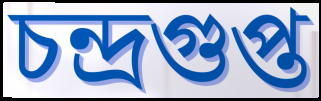
চন্দ্রগুপ্ত